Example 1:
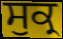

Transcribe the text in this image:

ਸੁਕ੍ਰ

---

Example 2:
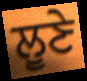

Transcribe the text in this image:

ਲੂਣੇ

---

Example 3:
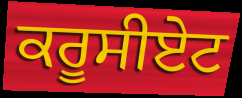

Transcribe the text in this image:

ਕਰੂਸੀਏਟ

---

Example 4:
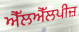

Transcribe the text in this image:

ਐੱਲਐੱਲਪੀਜ਼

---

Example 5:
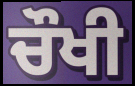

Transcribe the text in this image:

ਚੌਖੀ